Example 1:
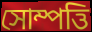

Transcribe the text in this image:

সোম্পত্তি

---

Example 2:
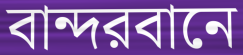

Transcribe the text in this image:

বান্দরবানে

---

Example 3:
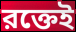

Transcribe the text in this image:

রক্তেই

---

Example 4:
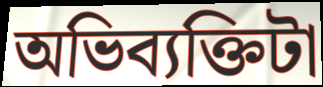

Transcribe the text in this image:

অভিব্যক্তিটা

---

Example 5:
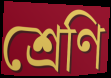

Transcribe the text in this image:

শ্রেণি